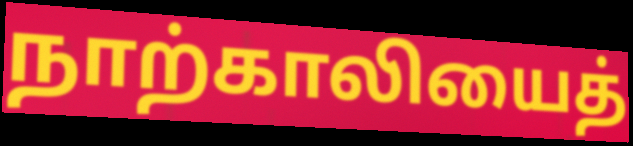
நாற்காலியைத்